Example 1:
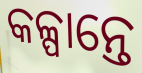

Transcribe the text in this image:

କଳ୍ପାନ୍ତେ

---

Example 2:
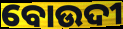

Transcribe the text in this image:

ବୋଉଦୀ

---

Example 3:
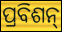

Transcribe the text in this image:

ପ୍ରବିଶନ୍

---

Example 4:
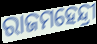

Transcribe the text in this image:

ରାଜମହେନ୍ଦ୍ରୀ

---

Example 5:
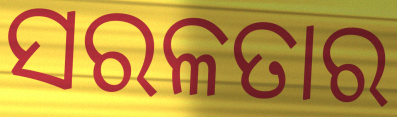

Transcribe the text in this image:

ସରଳତାର